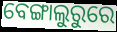
ବେଙ୍ଗାଲୁରୁରେ